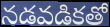
నడవడికతో